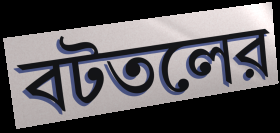
বটতলের